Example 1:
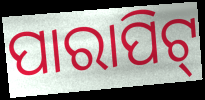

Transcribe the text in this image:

ପାରାପିଟ୍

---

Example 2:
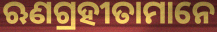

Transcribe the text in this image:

ଋଣଗ୍ରହୀତାମାନେ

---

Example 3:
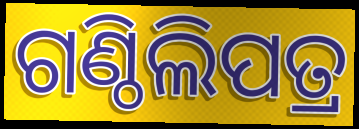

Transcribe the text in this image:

ଗଣ୍ଠିଲିପତ୍ର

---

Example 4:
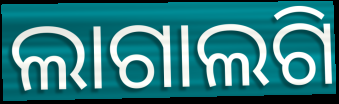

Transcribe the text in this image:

ଲାଗାଲଗି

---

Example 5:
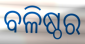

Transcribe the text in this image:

ବଳିଷ୍ଠର